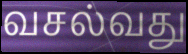
வசல்வது